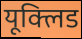
यूक्लिड